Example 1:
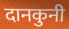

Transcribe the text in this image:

दानकुनी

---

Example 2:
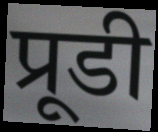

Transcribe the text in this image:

प्रूडी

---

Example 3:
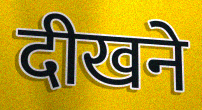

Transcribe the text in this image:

दीखने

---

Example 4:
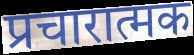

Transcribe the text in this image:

प्रचारात्मक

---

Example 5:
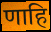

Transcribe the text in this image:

णाहि